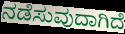
ನಡೆಸುವುದಾಗಿದೆ